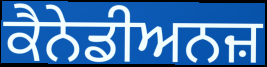
ਕੈਨੇਡੀਅਨਜ਼